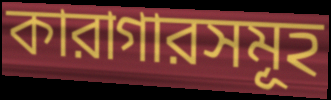
কারাগারসমূহ